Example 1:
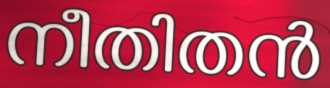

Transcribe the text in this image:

നീതിതൻ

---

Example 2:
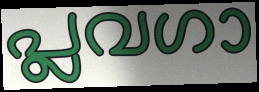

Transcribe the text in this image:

പ്ലവഗാ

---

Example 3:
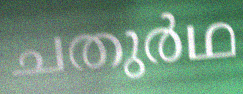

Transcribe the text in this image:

ചതുർഥ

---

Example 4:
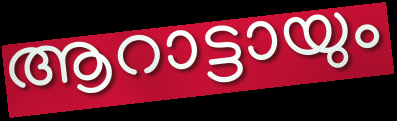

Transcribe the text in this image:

ആറാട്ടായും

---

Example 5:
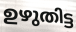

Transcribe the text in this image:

ഉഴുതിട്ട